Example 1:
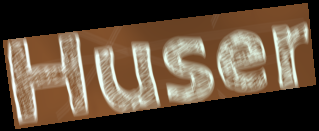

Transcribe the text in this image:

Huser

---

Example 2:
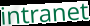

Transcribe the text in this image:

intranet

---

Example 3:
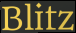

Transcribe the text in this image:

Blitz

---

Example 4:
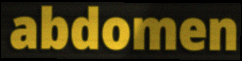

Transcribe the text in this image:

abdomen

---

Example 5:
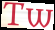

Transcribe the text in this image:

Tw